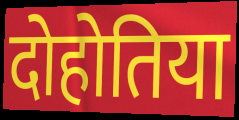
दोहोतिया